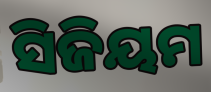
ସିଜିୟମ